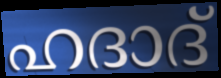
ഹദാദ്